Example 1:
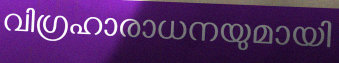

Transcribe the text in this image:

വിഗ്രഹാരാധനയുമായി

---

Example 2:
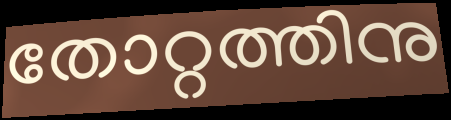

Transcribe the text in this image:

തോറ്റത്തിനു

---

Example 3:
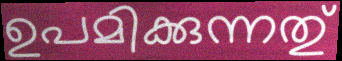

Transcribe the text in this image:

ഉപമിക്കുന്നതു്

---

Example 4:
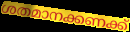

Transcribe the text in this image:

ശതമാനക്കണക്ക്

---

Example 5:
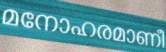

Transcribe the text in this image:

മനോഹരമാണീ